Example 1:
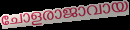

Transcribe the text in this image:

ചോളരാജാവായ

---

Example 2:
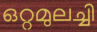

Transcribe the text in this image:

ഒറ്റമുലച്ചി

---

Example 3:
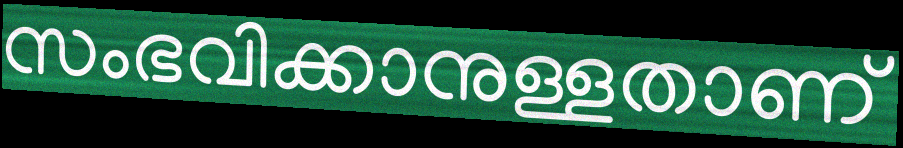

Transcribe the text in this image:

സംഭവിക്കാനുള്ളതാണ്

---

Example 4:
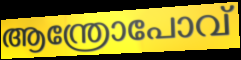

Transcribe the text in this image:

ആന്ത്രോപോവ്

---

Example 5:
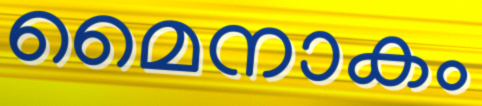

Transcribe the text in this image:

മൈനാകം